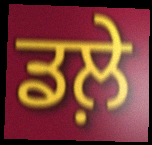
ਡਲ਼ੇ